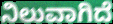
ನಿಲುವಾಗಿದೆ